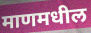
माणमधील